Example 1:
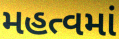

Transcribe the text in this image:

મહત્વમાં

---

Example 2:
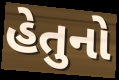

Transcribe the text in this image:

હેતુનો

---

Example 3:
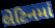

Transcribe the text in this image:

લેટિનમાં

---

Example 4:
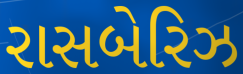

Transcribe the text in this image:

રાસબેરિઝ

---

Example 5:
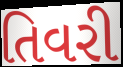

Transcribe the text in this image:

તિવરી